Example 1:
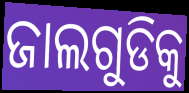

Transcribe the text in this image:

ଜାଲଗୁଡିକୁ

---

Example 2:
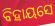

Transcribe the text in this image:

ବିହାୟସେ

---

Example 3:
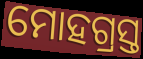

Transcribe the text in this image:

ମୋହଗ୍ରସ୍ତ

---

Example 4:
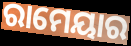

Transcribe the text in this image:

ରାମେୟାର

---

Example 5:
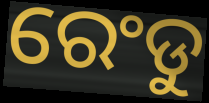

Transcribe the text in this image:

ରେଂଡୁ